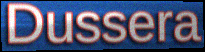
Dussera